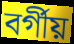
বৰ্গীয়